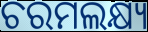
ଚରମଲକ୍ଷ୍ୟ